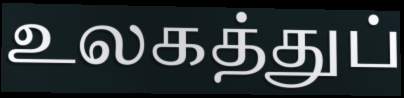
உலகத்துப்